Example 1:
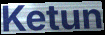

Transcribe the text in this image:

Ketun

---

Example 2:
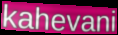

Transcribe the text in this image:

kahevani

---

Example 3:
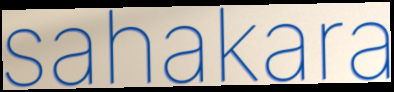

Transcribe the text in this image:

sahakara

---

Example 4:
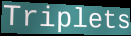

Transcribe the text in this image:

Triplets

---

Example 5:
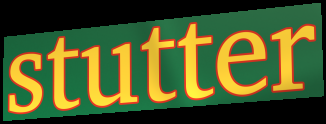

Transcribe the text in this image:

stutter